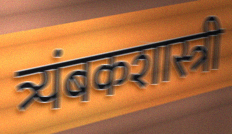
त्र्यंबकशास्त्री